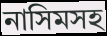
নাসিমসহ